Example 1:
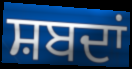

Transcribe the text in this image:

ਸ਼ਬਦਾਂ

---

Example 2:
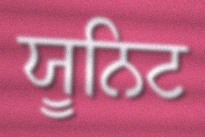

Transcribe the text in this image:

ਯੂਨਿਟ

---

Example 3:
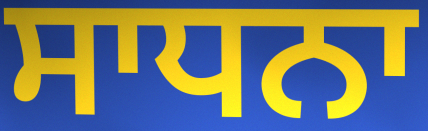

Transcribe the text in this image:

ਸਾਧਨਾ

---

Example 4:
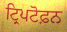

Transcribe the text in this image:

ਟ੍ਰਿਪਟੋਫ਼ਨ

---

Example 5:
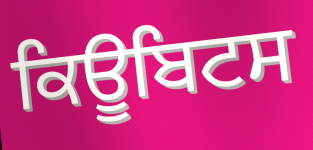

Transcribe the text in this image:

ਕਿਊਬਿਟਸ